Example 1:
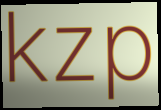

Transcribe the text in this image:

kzp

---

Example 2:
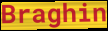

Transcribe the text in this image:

Braghin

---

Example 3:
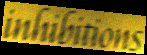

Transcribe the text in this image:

inhibitions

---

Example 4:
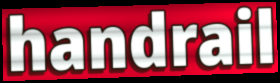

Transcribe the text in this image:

handrail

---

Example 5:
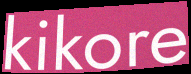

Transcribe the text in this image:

kikore